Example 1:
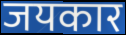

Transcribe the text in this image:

जयकार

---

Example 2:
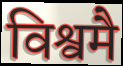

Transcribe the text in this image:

विश्वमै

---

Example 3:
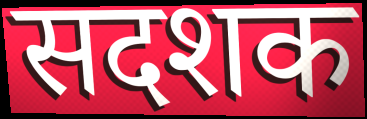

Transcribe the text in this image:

सदशक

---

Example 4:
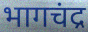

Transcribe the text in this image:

भागचंद्र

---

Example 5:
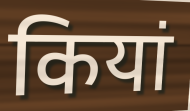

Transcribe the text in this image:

कियां